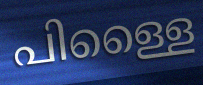
പിള്ളൈ